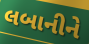
લબાનીને